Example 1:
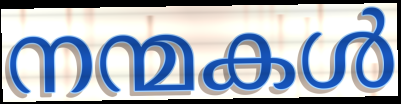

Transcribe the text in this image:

നന്മകൾ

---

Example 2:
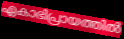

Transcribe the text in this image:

ഏകാഭിപ്രായത്തിൽ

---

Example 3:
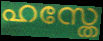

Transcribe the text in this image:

ഹസ്തേ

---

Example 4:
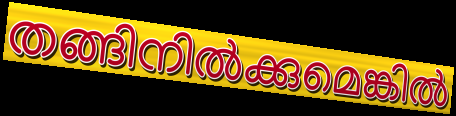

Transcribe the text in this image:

തങ്ങിനിൽക്കുമെങ്കിൽ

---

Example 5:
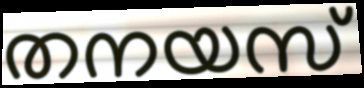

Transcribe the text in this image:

തനയസ്